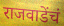
राजवाडेंचं